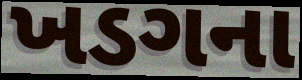
ખડગના